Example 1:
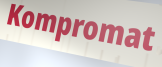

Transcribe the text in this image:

Kompromat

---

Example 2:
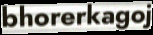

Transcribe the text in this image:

bhorerkagoj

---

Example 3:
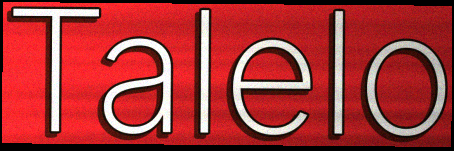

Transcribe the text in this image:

Talelo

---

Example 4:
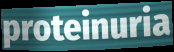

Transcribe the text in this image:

proteinuria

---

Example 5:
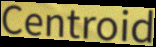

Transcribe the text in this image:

Centroid